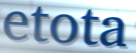
etota